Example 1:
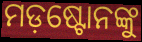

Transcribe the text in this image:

ମଡ଼ଷ୍ଟୋନଙ୍କୁ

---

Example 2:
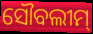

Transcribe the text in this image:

ସୌବଲୀମ୍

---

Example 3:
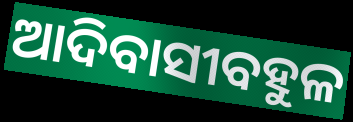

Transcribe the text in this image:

ଆଦିବାସୀବହୁଳ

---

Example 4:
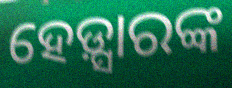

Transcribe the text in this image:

ହେଡ଼୍ସାରଙ୍କ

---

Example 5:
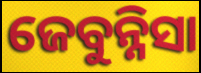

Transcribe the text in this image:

ଜେବୁନ୍ନିସା